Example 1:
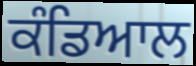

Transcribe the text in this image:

ਕੰਡਿਆਲ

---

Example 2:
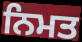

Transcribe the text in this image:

ਨਿਮਤ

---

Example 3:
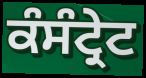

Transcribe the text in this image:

ਕੰਸੰਟ੍ਰੇਟ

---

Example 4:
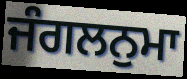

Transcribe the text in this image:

ਜੰਗਲਨੁਮਾ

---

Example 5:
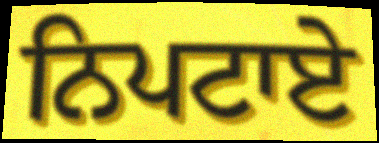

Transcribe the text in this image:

ਨਿਪਟਾਏ